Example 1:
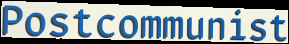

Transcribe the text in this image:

Postcommunist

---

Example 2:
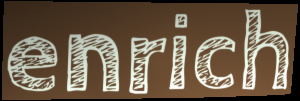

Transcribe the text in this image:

enrich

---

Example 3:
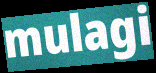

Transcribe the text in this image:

mulagi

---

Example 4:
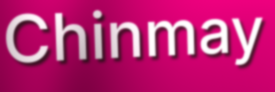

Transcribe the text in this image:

Chinmay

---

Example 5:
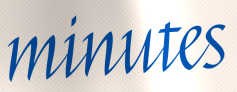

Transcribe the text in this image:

minutes